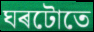
ঘৰটোতে